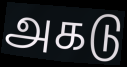
அகடு